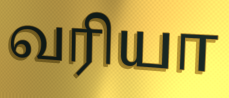
வரியா